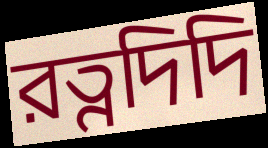
রত্নদিদি